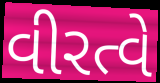
વીરત્વે